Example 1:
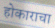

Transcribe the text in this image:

होकाराचा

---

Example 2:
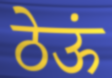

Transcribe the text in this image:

ठेऊं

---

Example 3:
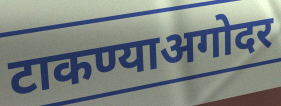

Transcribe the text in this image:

टाकण्याअगोदर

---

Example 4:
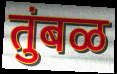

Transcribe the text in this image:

तुंबळ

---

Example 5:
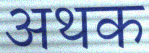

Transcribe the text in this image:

अथक